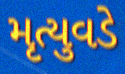
મૃત્યુવડે